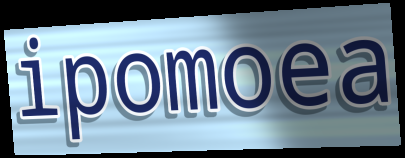
ipomoea